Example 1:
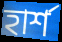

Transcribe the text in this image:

হার্শ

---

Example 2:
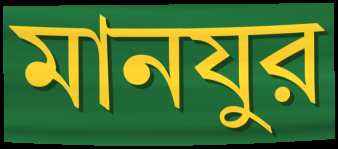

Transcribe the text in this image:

মানযুর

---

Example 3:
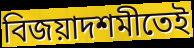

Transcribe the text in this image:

বিজয়াদশমীতেই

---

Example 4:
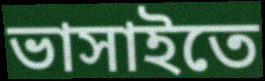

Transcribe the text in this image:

ভাসাইতে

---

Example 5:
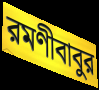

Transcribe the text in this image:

রমণীবাবুর